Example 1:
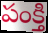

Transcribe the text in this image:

పంక్తి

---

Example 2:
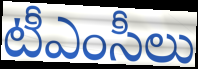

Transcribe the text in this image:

టీఎంసీలు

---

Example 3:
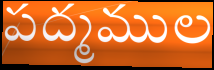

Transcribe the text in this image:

పద్మముల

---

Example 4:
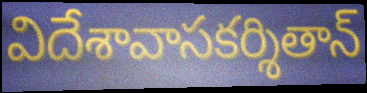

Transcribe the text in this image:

విదేశావాసకర్శితాన్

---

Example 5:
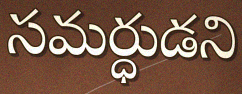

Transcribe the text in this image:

సమర్ధుడని